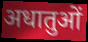
अधातुओं